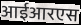
आईआरएस